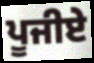
ਪੂਜੀਏ